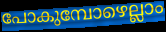
പോകുമ്പോഴെല്ലാം